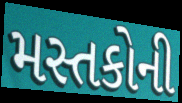
મસ્તકોની